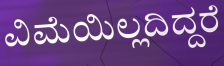
ವಿಮೆಯಿಲ್ಲದಿದ್ದರೆ